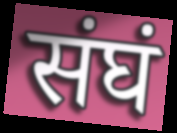
संघं